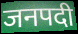
जनपदी